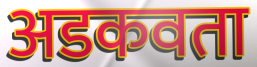
अडकवता